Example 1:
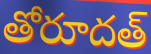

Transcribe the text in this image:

తోరూదత్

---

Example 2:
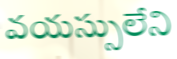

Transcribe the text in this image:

వయస్సులేని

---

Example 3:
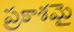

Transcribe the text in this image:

ప్రకాశమై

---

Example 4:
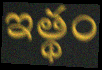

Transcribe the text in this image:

ఇత్థం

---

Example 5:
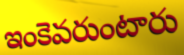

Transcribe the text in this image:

ఇంకెవరుంటారు